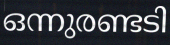
ഒന്നുരണ്ടടി